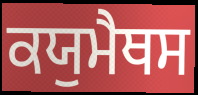
ਕਯੁਮੈਥਸ